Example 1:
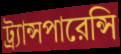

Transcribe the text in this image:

ট্র্যান্সপারেন্সি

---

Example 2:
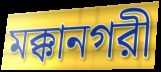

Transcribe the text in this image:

মক্কানগরী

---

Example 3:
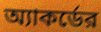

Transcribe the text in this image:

অ্যাকর্ডের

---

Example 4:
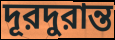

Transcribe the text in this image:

দূরদুরান্ত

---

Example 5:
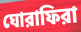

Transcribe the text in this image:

ঘোরাফিরা